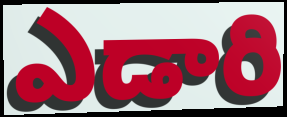
ఎడారి